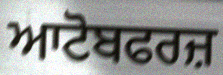
ਆਟੋਬਫਰਜ਼